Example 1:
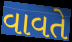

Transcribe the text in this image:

વાવતે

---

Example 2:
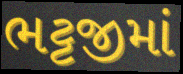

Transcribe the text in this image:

ભટ્ટજીમાં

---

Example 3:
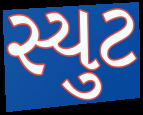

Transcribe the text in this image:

સ્યુટ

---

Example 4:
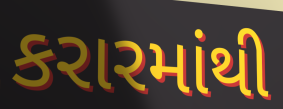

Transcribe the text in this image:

કરારમાંથી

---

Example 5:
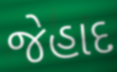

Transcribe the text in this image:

જેહાદ